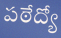
పఠేద్యో